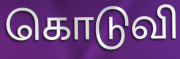
கொடுவி